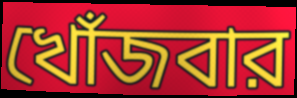
খোঁজবার